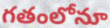
గతంలోనూ